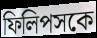
ফিলিপসকে